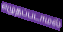
எழுதப்படாமல்